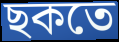
ছকতে